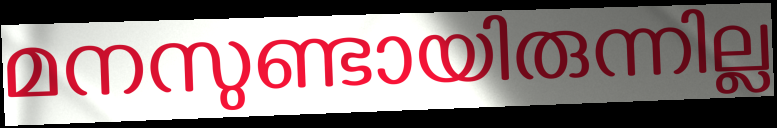
മനസുണ്ടായിരുന്നില്ല